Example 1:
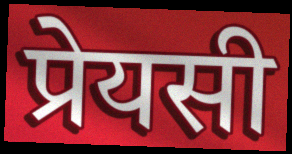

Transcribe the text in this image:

प्रेयसी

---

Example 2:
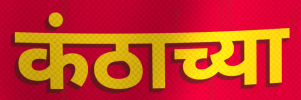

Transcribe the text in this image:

कंठाच्या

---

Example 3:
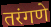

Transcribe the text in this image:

तरंगणे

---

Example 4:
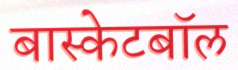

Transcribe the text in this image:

बास्केटबॉल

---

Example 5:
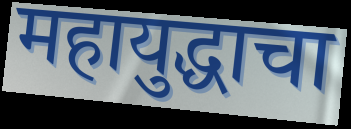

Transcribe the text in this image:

महायुद्धाचा